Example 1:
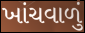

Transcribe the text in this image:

ખાંચવાળું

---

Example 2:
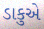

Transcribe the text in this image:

ડાકુએ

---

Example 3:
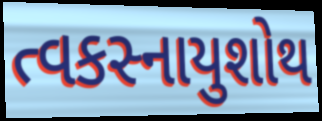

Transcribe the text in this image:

ત્વકસ્નાયુશોથ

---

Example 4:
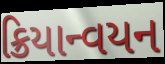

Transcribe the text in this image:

ક્રિયાન્વયન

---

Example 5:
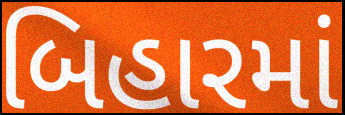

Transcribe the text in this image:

બિહારમાં